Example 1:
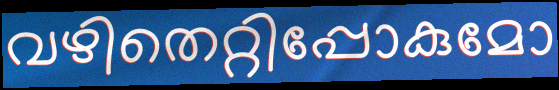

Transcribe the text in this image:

വഴിതെറ്റിപ്പോകുമോ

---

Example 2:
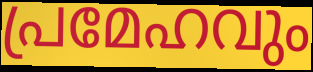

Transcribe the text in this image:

പ്രമേഹവും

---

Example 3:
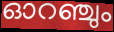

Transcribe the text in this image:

ഓറഞ്ചും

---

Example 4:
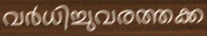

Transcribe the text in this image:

വർധിച്ചുവരത്തക്ക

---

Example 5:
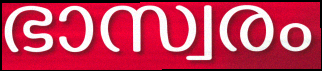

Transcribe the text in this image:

ഭാസ്വരം